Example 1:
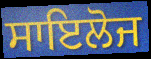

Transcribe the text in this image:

ਸਾਇਲੋਜ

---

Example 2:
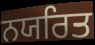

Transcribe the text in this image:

ਨਯਰਿਤ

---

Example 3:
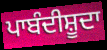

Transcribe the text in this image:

ਪਾਬੰਦੀਸ਼ੂਦਾ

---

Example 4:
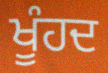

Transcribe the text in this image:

ਖੂੰਹਦ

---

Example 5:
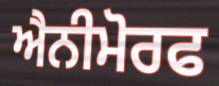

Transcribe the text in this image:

ਐਨੀਮੋਰਫ